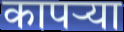
कापर्‍या